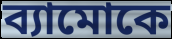
ব্যামোকে